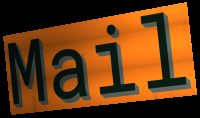
Mail